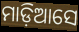
ମାଡ଼ିଆସେ